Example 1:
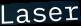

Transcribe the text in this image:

Laser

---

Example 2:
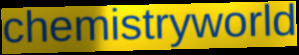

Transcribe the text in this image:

chemistryworld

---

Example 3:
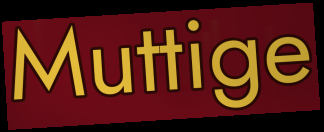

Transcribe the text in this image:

Muttige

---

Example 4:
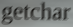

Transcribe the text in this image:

getchar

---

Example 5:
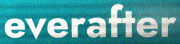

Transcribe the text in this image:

everafter